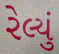
રેલ્યું